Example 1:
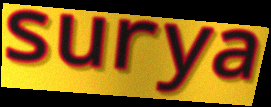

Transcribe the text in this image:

surya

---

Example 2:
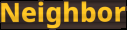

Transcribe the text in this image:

Neighbor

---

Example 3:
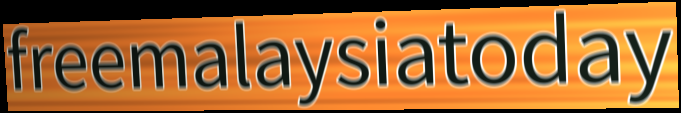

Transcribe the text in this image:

freemalaysiatoday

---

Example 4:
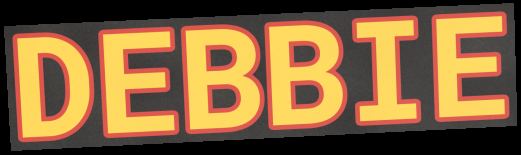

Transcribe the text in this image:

DEBBIE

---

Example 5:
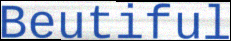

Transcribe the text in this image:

Beutiful